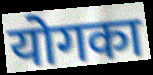
योगका